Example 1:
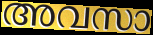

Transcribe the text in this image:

അവസാ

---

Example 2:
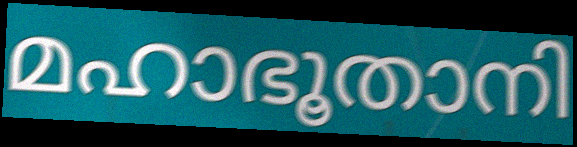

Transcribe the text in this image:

മഹാഭൂതാനി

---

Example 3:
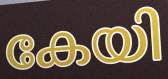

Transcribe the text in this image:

കേയി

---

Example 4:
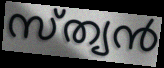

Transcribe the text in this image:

സ്‌ത്യൻ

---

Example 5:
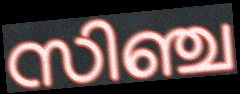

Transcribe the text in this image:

സിഞ്ച